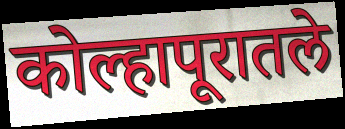
कोल्हापूरातले